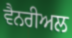
ਵੈਨਰੀਅਲ